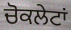
ਚੋਕਲੇਟਾਂ